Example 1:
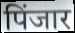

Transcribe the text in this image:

पिंजार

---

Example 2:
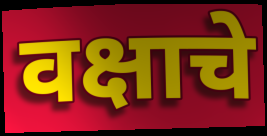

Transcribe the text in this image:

वक्षाचे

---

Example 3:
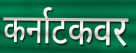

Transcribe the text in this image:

कर्नाटकवर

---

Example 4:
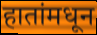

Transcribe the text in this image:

हातांमधून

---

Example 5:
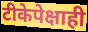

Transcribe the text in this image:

टीकेपेक्षाही